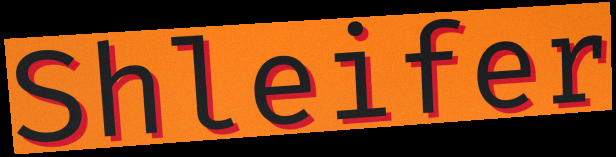
Shleifer